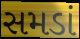
સમડાં